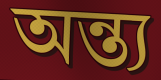
অন্ত্য